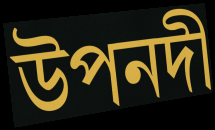
উপনদী